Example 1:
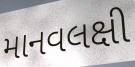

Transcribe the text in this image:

માનવલક્ષી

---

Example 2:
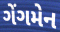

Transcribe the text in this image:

ગેંગમેન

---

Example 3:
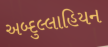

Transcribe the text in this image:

અબ્દુલ્લાહિયન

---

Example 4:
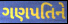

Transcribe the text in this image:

ગણપતિને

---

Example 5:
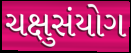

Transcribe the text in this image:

ચક્ષુસંયોગ